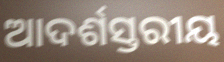
ଆଦର୍ଶସ୍ତରୀୟ